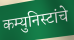
कम्युनिस्टांचे